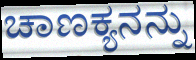
ಚಾಣಕ್ಯನನ್ನು